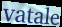
vatale